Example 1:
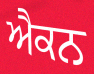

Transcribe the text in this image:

ਐਕਨ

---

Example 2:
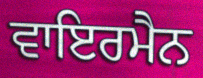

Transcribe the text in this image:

ਵਾਇਰਮੈਨ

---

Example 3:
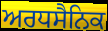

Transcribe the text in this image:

ਅਰਧਸੈਨਿਕ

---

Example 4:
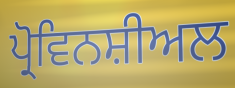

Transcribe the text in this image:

ਪ੍ਰੋਵਿਨਸ਼ੀਅਲ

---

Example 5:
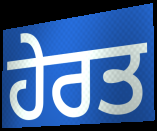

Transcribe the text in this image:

ਹੇਰਤ